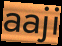
aaji